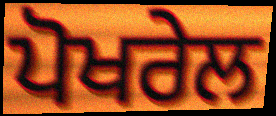
ਪੋਖਰੇਲ